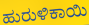
ಹುರುಳಿಕಾಯಿ